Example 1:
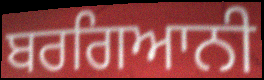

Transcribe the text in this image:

ਬਰਗਿਆਨੀ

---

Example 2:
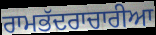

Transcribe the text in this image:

ਰਾਮਭੱਦਰਾਚਾਰੀਆ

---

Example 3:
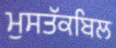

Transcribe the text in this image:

ਮੁਸਤੱਕਬਿਲ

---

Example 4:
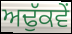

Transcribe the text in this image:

ਅਢੁੱਕਵੇਂ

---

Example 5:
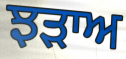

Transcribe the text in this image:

ਝੜਾਅ